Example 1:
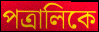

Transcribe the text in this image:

পত্রালিকে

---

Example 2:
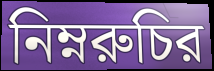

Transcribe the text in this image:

নিম্নরুচির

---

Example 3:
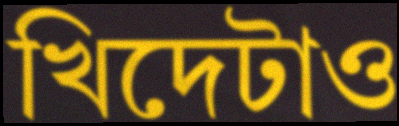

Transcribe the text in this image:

খিদেটাও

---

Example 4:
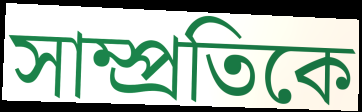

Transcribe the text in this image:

সাম্প্রতিকে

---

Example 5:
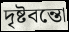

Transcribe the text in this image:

দৃষ্টবন্তো